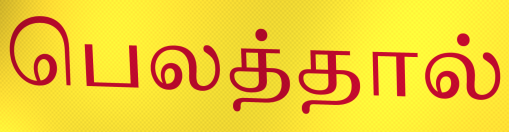
பெலத்தால்